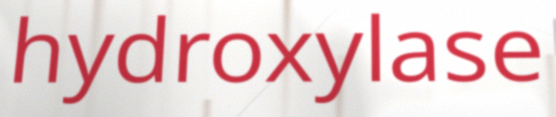
hydroxylase